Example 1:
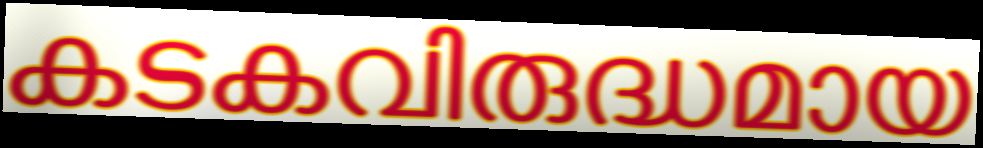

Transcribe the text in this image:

കടകവിരുദ്ധമായ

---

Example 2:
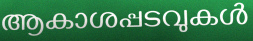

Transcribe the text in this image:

ആകാശപ്പടവുകൾ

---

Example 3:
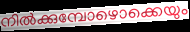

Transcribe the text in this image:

നിൽക്കുമ്പോഴൊക്കെയും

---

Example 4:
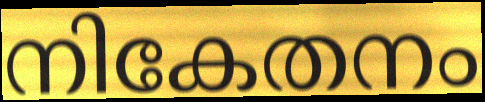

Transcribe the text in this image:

നികേതനം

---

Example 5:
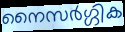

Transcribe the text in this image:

നൈസർഗ്ഗിക